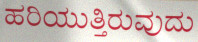
ಹರಿಯುತ್ತಿರುವುದು